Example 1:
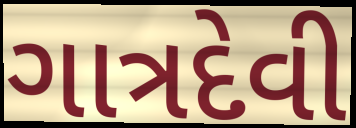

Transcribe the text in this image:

ગાત્રદેવી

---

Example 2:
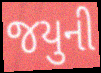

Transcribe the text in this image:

જયુની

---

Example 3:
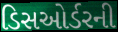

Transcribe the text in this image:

ડિસઓર્ડરની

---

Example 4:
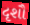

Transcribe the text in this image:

દૃશૌ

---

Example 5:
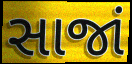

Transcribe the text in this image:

સાજાં